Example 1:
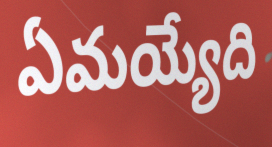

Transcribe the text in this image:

ఏమయ్యేది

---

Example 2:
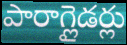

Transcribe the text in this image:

పారాగ్లైడర్లు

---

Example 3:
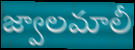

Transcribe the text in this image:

జ్వాలమాలీ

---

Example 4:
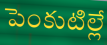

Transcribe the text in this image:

పెంకుటిల్లే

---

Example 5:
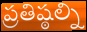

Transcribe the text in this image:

ప్రతిష్ఠల్ని